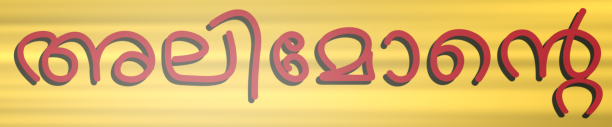
അലിമോന്റെ